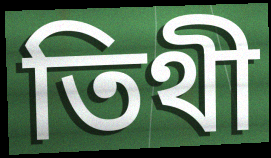
তিথী